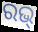
ରଭ୍